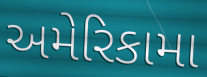
અમેરિકામા